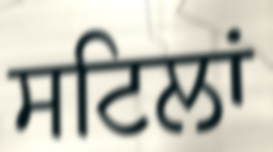
ਸਟਿਲਾਂ